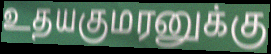
உதயகுமரனுக்கு